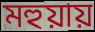
মহুয়ায়